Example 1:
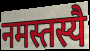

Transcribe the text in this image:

नमस्तस्यै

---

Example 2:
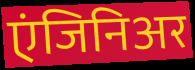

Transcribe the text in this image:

एंजिनिअर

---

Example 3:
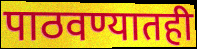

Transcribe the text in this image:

पाठवण्यातही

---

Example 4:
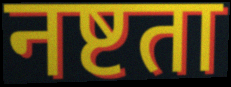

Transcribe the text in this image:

नष्टता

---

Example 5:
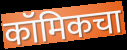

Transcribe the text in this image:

कॉमिकचा